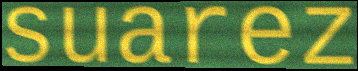
suarez